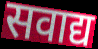
सवाद्य